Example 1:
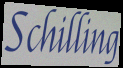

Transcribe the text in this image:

Schilling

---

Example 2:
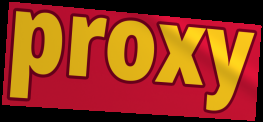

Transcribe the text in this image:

proxy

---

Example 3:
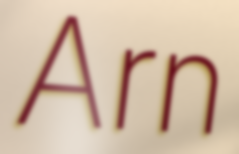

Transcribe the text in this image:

Arn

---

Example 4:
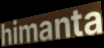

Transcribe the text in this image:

himanta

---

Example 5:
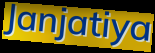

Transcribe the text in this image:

Janjatiya